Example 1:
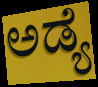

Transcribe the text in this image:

ಅಡ್ಯೆ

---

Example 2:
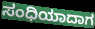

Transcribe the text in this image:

ಸಂಧಿಯಾದಾಗ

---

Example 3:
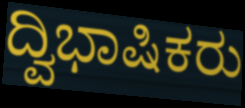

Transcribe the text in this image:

ದ್ವಿಭಾಷಿಕರು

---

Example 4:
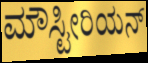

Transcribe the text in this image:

ಮೌಸ್ಟೀರಿಯನ್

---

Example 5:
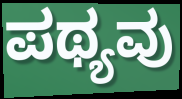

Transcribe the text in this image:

ಪಥ್ಯವು